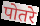
पोतरे